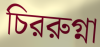
চিররুগ্না